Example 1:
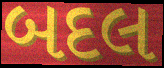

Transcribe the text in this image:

બદલ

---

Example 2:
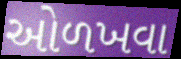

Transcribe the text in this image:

ઓળખવા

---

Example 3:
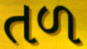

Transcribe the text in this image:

તળ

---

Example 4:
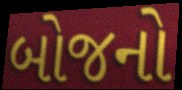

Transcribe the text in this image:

બોજનો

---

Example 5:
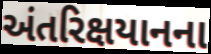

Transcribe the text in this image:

અંતરિક્ષયાનના